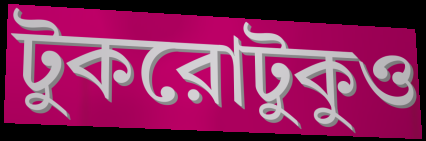
টুকরোটুকুও